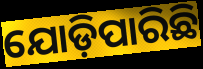
ଯୋଡ଼ିପାରିଛି